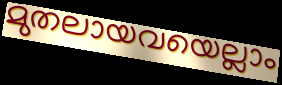
മുതലായവയെല്ലാം